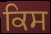
ਕਿਸ